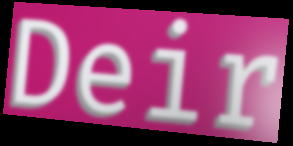
Deir